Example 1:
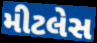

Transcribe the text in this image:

મીટલેસ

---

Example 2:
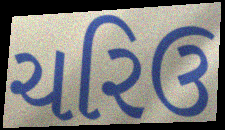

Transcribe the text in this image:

ચરિઉ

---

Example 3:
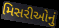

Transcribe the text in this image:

મિસરીઓનું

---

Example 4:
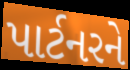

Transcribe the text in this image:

પાર્ટનરને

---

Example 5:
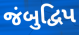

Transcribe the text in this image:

જંબુદ્વિપ